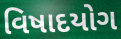
વિષાદયોગ